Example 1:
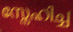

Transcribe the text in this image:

സ്നേഹിച്ച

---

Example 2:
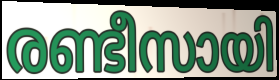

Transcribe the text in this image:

രണ്ടീസായി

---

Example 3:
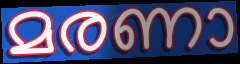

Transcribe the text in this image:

മരണാ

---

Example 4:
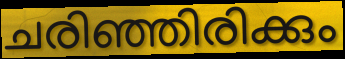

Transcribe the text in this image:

ചരിഞ്ഞിരിക്കും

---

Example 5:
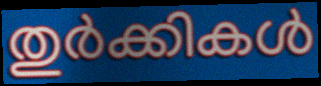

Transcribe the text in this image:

തുർക്കികൾ